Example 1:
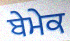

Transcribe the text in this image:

ਬੇਮੇਕ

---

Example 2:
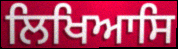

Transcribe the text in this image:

ਲਿਖਿਆਸਿ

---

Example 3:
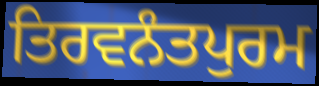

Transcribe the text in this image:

ਤਿਰਵਨੰਤਪੁਰਮ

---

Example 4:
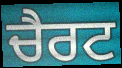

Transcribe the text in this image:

ਚੈਰਟ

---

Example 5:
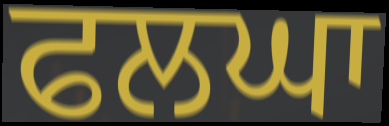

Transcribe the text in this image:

ਫਲਘਾ